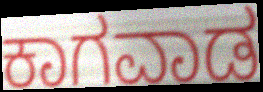
ಕಾಗವಾಡ